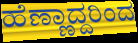
ಹೆಣ್ಣಾದ್ದರಿಂದ